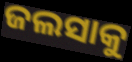
ଜଲସାକୁ